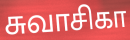
சுவாசிகா